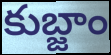
కుబ్జాం